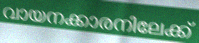
വായനക്കാരനിലേക്ക്